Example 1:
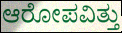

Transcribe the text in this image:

ಆರೋಪವಿತ್ತು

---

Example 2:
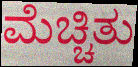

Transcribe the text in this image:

ಮೆಚ್ಚಿತು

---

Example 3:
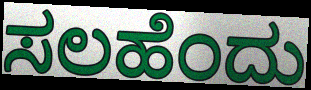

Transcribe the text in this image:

ಸಲಹೆಂದು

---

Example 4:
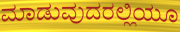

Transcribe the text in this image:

ಮಾಡುವುದರಲ್ಲಿಯೂ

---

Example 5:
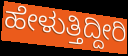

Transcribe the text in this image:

ಹೇಳುತ್ತಿದ್ದೀರಿ